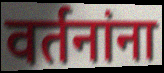
वर्तनांना